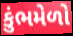
કુંભમેળો